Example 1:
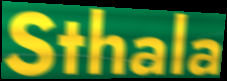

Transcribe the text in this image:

Sthala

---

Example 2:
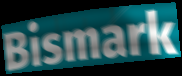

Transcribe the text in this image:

Bismark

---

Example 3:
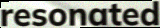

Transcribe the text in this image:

resonated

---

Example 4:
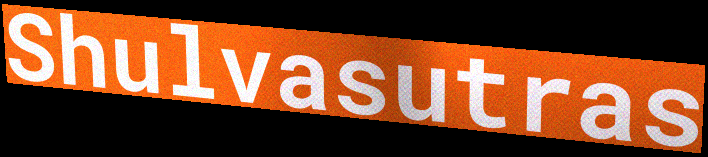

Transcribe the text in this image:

Shulvasutras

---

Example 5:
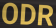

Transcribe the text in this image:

ODR